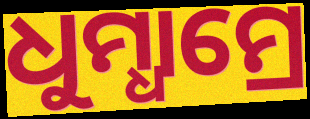
ଧୁମ୍ଧାମ୍ରେ